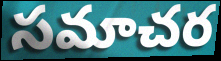
సమాచర